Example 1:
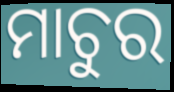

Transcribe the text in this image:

ମାଚୁର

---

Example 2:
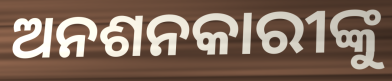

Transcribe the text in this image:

ଅନଶନକାରୀଙ୍କୁ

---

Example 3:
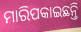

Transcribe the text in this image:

ମାରିପକାଇଛନ୍ତି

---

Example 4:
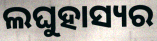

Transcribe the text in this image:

ଲଘୁହାସ୍ୟର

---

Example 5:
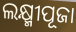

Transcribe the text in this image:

ଲକ୍ଷ୍ମୀପୂଜା